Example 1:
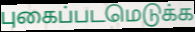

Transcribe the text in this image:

புகைப்படமெடுக்க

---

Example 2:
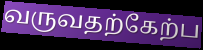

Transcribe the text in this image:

வருவதற்கேற்ப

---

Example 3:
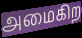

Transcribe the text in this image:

அமைகிற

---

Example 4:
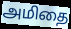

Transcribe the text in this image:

அமிதை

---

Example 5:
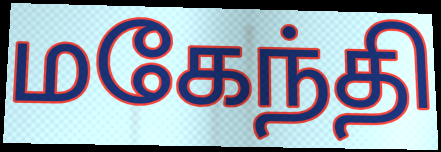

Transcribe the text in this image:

மகேந்தி